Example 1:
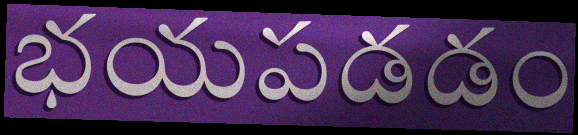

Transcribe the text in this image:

భయపడడం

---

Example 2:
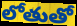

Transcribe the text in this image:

లోతుతో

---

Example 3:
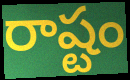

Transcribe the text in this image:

రాష్టం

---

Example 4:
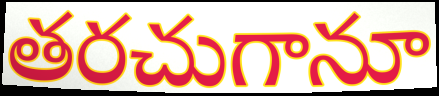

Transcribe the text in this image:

తరచుగానూ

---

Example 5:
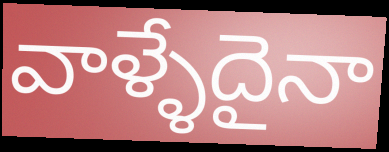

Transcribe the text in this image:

వాళ్ళేదైనా